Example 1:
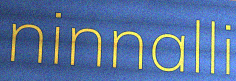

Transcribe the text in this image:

ninnalli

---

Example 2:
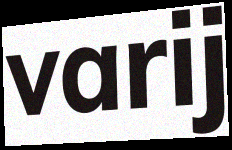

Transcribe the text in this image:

varij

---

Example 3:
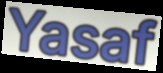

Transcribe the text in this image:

Yasaf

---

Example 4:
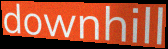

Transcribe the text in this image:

downhill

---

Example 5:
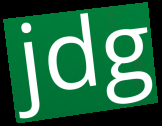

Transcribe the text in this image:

jdg